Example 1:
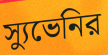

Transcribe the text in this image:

স্যুভেনির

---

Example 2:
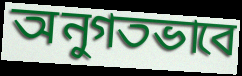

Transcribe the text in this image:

অনুগতভাবে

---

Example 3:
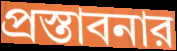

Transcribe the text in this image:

প্রস্তাবনার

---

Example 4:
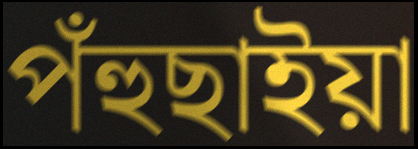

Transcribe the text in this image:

পঁহুছাইয়া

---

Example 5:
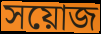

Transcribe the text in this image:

সয়োজ